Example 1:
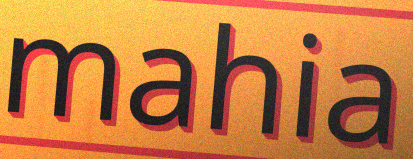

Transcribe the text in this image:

mahia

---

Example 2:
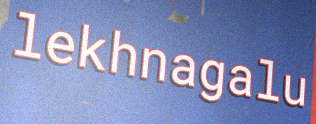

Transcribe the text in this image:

lekhnagalu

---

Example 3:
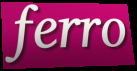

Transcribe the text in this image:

ferro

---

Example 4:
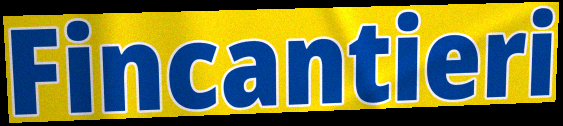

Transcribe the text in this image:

Fincantieri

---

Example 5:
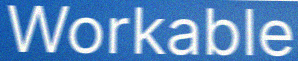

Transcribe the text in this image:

Workable